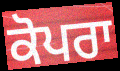
ਕੋਪਰਾ